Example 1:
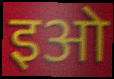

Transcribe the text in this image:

इओ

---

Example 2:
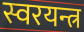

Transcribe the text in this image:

स्वरयन्त्र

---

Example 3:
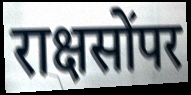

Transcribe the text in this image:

राक्षसोंपर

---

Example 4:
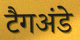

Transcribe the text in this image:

टैगअंडे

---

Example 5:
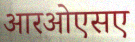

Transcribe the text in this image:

आरओएसए